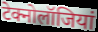
टेक्नोलॉजियां